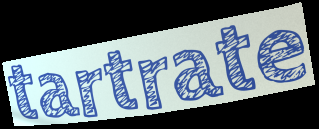
tartrate